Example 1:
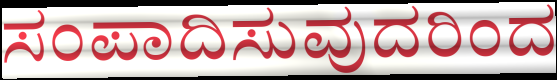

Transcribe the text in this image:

ಸಂಪಾದಿಸುವುದರಿಂದ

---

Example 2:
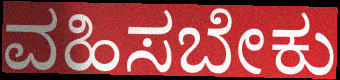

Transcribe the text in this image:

ವಹಿಸಬೇಕು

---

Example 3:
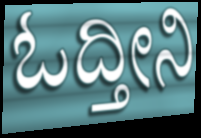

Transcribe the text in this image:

ಓದ್ತೀನಿ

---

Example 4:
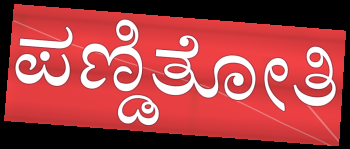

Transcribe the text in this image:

ಪಣ್ಡಿತೋತಿ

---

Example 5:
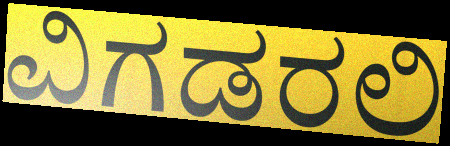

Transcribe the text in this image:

ವಿಗಡರಲಿ